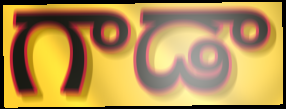
గాడా